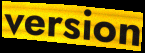
version